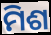
ମିଶ